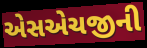
એસએચજીની